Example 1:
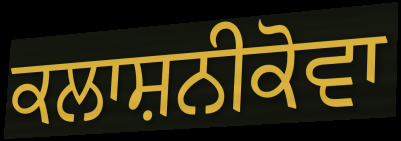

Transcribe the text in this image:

ਕਲਾਸ਼ਨੀਕੋਵਾ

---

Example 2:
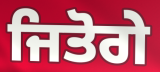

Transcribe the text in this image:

ਜਿਤੋਗੇ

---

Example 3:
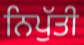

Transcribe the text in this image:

ਨਿਪੁੱਤੀ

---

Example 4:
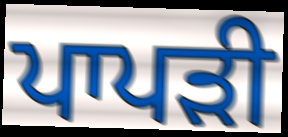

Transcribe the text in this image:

ਪਾਪੜੀ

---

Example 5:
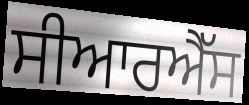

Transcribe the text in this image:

ਸੀਆਰਐੱਸ